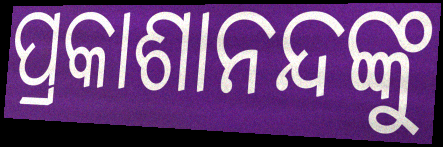
ପ୍ରକାଶାନନ୍ଦଙ୍କୁ